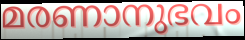
മരണാനുഭവം